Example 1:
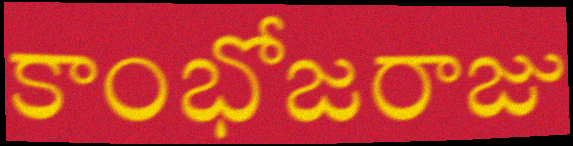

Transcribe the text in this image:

కాంభోజరాజు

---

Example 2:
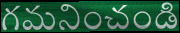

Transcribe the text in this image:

గమనించండి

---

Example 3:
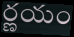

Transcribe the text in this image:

ర్ణయం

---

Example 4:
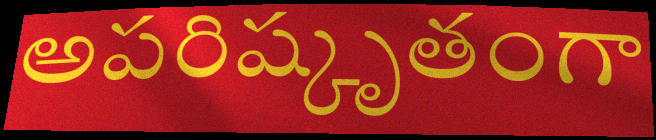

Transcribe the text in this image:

అపరిష్కృతంగా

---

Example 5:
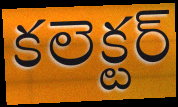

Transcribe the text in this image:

కలెక్టర్